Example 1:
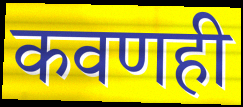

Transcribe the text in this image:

कवणही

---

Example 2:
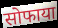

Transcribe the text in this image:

सोफाया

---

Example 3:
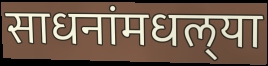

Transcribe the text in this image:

साधनांमधल्या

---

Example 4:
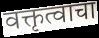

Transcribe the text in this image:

वक्तृत्वाचा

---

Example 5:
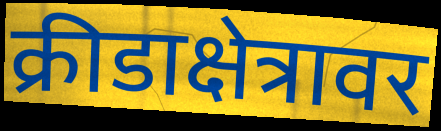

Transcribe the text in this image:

क्रीडाक्षेत्रावर